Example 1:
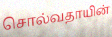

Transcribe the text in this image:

சொல்வதாயின்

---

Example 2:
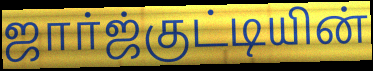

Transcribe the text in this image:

ஜார்ஜ்குட்டியின்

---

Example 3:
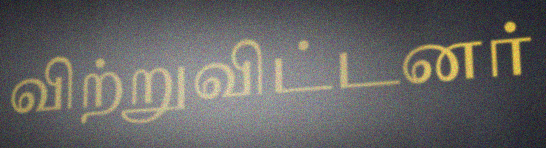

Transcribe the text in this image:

விற்றுவிட்டனர்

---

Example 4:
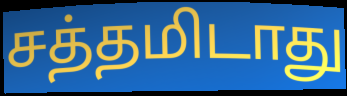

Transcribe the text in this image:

சத்தமிடாது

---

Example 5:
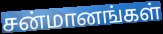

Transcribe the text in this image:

சன்மானங்கள்